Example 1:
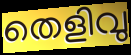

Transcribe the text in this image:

തെളിവു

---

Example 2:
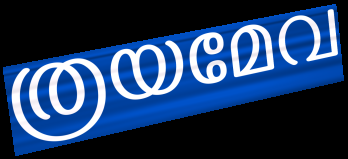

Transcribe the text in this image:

ത്രയമേവ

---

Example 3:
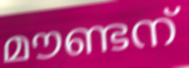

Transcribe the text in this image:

മൗണ്ടന്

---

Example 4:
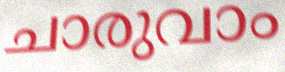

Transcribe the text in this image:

ചാരുവാം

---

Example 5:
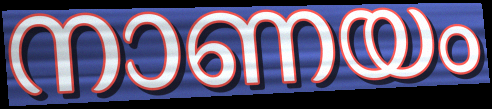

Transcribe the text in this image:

നാണയം